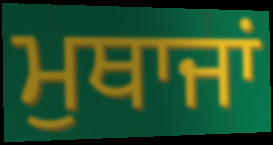
ਮੁਥਾਜਾਂ